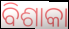
ବିଶାକା